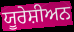
ਯੂਰੇਸ਼ੀਅਨ